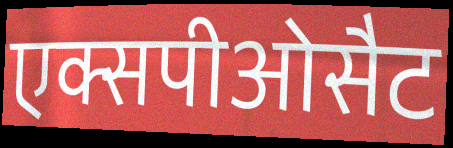
एक्सपीओसैट